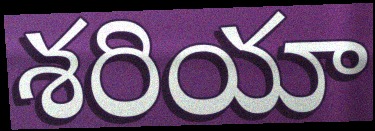
శరియా